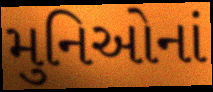
મુનિઓનાં